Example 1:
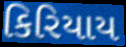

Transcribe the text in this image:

કિરિયાય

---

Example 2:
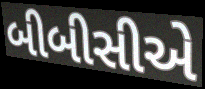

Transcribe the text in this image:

બીબીસીએ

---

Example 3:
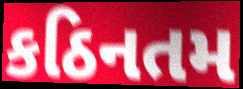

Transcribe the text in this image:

કઠિનતમ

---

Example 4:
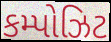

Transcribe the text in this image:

કમ્પોઝિટ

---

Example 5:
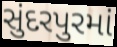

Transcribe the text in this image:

સુંદરપુરમાં